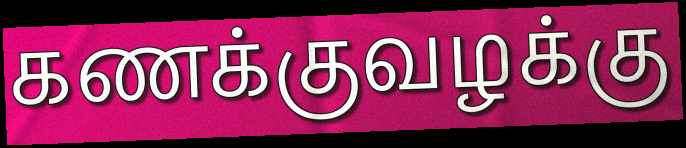
கணக்குவழக்கு